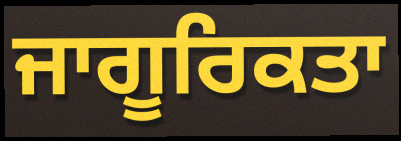
ਜਾਗੂਰਿਕਤਾ